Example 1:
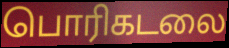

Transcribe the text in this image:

பொரிகடலை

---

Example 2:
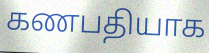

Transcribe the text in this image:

கணபதியாக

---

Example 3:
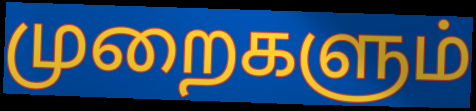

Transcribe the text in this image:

முறைகளும்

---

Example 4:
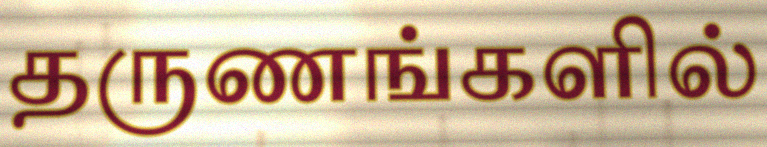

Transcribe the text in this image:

தருணங்களில்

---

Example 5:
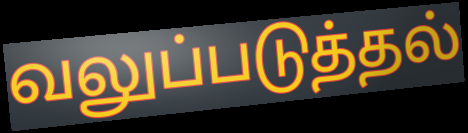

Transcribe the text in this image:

வலுப்படுத்தல்